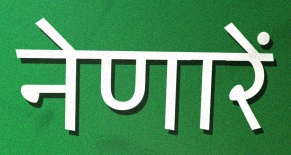
नेणारें